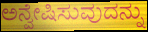
ಅನ್ವೇಷಿಸುವುದನ್ನು